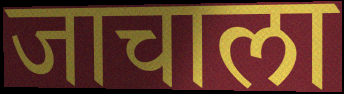
जाचाला